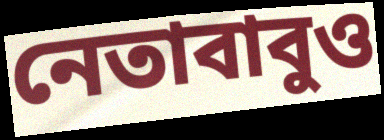
নেতাবাবুও